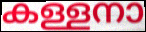
കള്ളനാ